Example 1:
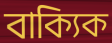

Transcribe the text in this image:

বাক্যিক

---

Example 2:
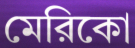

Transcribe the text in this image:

মেরিকো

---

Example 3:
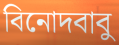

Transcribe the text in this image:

বিনোদবাবু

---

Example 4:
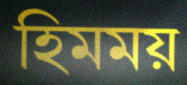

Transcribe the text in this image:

হিমময়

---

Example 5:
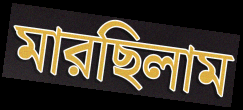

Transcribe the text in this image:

মারছিলাম